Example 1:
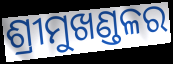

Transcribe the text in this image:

ଶ୍ରୀମୁଖଣ୍ଡଳର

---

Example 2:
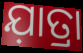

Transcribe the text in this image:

ଯ଼ାତ୍ରା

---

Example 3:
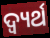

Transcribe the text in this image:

ଦ୍ୱ୍ୟର୍ଥ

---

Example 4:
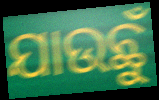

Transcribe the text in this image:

ଯାଉଛୁଁ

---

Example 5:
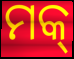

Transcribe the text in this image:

ମକ୍